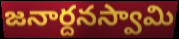
జనార్దనస్వామి